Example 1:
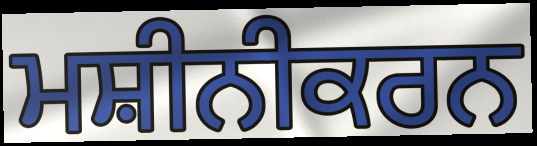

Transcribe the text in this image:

ਮਸ਼ੀਨੀਕਰਨ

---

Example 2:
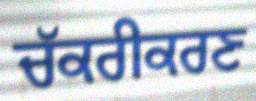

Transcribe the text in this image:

ਚੱਕਰੀਕਰਣ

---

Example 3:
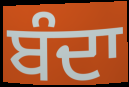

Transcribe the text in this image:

ਬੰਦਾ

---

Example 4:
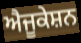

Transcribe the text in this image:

ਐਜੂਕੇਸ਼ਨ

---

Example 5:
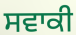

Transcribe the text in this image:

ਸਵਾਕੀ